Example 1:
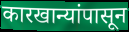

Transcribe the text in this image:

कारखान्यांपासून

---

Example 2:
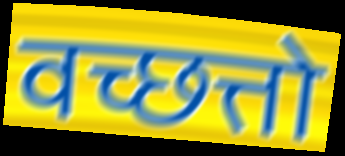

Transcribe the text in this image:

वच्छत्तो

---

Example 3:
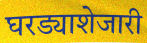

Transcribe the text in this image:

घरड्याशेजारी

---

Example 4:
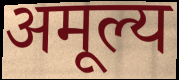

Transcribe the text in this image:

अमूल्य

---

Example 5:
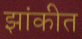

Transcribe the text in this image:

झांकीत